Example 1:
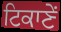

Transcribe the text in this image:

ਟਿਕਾਣੇਂ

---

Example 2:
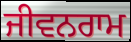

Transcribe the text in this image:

ਜੀਵਨਰਾਮ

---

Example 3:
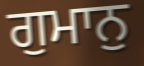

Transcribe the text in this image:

ਗੁਮਾਨੁ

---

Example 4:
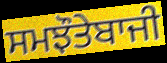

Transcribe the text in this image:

ਸਮਝੌਤੇਬਾਜੀ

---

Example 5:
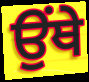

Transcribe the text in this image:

ਉੰਥੇ